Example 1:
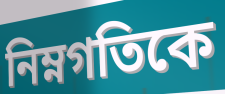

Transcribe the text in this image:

নিম্নগতিকে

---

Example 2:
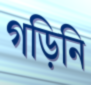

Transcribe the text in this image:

গড়িনি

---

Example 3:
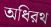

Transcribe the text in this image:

অধিরথ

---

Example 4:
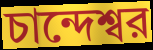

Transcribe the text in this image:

চান্দেশ্বর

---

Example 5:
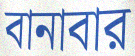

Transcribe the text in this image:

বানাবার